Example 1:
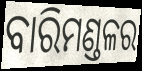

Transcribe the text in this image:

ବାରିମଣ୍ଡଳର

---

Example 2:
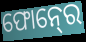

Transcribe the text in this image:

ଫୋନ୍‍ରେ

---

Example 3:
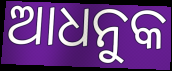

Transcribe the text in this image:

ଆଧନୁକ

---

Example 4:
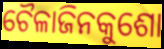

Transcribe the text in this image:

ଚୈଳାଜିନକୁଶୋ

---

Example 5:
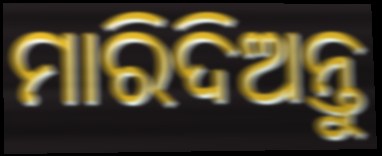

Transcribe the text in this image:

ମାରିଦିଅନ୍ତୁ